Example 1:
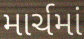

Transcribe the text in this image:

માર્ચમાં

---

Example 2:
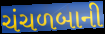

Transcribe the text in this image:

ચંચળબાની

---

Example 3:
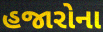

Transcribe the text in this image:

હજારોના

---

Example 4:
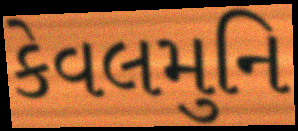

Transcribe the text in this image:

કેવલમુનિ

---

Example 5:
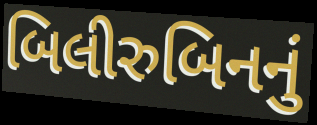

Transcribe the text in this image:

બિલીરુબિનનું